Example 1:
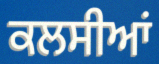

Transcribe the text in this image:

ਕਲਸੀਆਂ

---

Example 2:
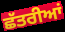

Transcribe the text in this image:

ਛੱਤਰੀਆਂ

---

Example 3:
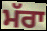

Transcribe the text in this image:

ਮੱਰਾ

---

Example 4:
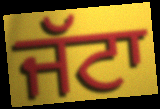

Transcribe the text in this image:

ਜੱਟਾ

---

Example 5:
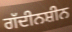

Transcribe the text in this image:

ਗੱਦੀਨਸ਼ੀਨ